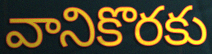
వానికొరకు